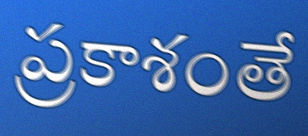
ప్రకాశంతే